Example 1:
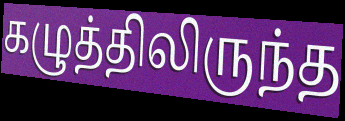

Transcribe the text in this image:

கழுத்திலிருந்த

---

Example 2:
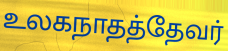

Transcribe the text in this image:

உலகநாதத்தேவர்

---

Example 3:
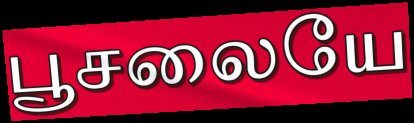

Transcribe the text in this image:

பூசலையே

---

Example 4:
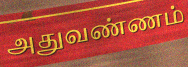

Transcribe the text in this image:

அதுவண்ணம்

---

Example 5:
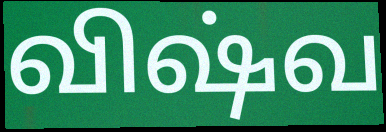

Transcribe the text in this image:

விஷ்வ